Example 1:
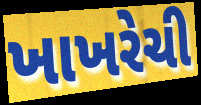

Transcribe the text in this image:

ખાખરેચી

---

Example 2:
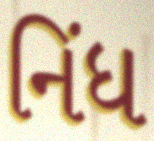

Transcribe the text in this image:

નિંધ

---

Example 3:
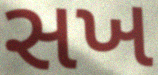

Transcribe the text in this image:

સખ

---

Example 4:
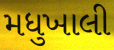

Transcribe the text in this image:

મધુખાલી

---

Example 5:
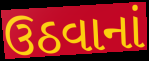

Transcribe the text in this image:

ઉઠવાનાં